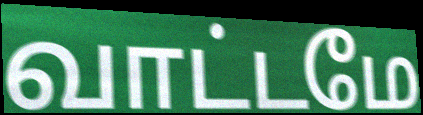
வாட்டமே